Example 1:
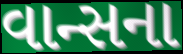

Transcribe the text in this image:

વાન્સના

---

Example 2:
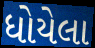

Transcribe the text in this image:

ધોયેલા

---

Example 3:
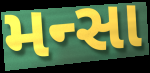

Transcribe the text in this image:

મન્સા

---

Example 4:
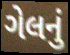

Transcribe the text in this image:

ગેલનું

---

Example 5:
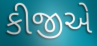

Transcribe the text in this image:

કીજીએ